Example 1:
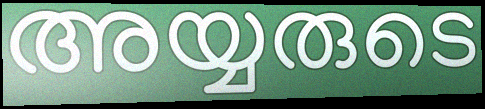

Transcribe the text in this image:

അയ്യരുടെ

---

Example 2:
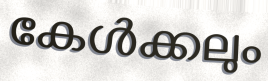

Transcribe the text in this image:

കേൾക്കലും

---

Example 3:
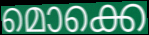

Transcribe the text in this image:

മൊക്കെ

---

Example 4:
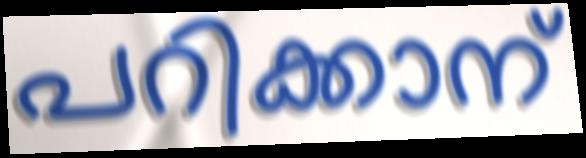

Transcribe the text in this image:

പറിക്കാന്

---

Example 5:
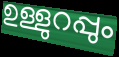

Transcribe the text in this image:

ഉള്ളുറപ്പും